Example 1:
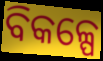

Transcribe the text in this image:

ବିକଳ୍ପେ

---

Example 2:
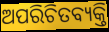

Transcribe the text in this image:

ଅପରିଚିତବ୍ୟକ୍ତି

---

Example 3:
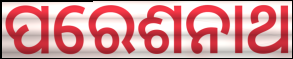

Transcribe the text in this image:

ପରେଶନାଥ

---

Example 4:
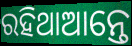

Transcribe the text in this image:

ରହିଥାଆନ୍ତେ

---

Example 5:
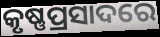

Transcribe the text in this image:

କୃଷ୍ଣପ୍ରସାଦରେ